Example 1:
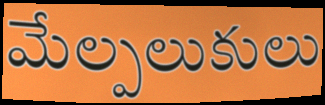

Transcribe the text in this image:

మేల్పలుకులు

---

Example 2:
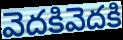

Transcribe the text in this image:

వెదకివెదకి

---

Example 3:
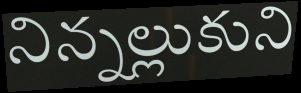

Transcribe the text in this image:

నిన్నల్లుకుని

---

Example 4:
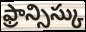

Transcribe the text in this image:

ఫ్రాన్సిస్కు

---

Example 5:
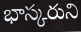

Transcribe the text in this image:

భాస్కరుని